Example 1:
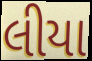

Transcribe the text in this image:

લીયા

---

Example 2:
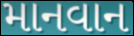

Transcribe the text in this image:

માનવાન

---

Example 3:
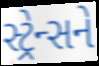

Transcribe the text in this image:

સ્ટ્રેન્સને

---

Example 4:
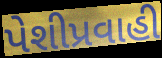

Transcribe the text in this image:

પેશીપ્રવાહી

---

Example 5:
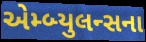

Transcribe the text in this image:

એમ્બ્યુલન્સના